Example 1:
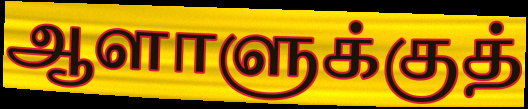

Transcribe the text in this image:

ஆளாளுக்குத்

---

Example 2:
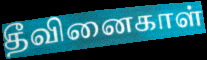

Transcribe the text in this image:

தீவினைகாள்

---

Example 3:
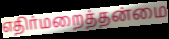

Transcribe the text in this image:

எதிர்மறைத்தன்மை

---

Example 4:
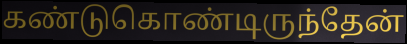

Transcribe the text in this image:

கண்டுகொண்டிருந்தேன்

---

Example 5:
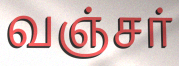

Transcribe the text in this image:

வஞ்சர்